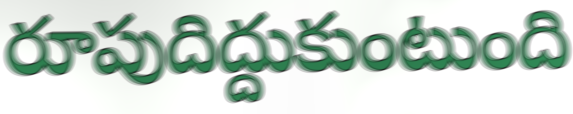
రూపుదిద్దుకుంటుంది